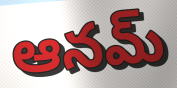
ఆనమ్